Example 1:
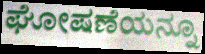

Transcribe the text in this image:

ಘೋಷಣೆಯನ್ನೂ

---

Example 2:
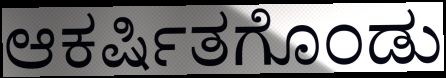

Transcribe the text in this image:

ಆಕರ್ಷಿತಗೊಂಡು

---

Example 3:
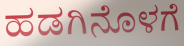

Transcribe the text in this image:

ಹಡಗಿನೊಳಗೆ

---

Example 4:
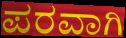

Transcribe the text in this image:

ಪರವಾಗಿ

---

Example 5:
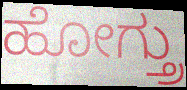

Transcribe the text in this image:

ಹೋಗ್ತ್ರು